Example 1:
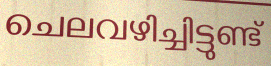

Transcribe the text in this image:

ചെലവഴിച്ചിട്ടുണ്ട്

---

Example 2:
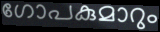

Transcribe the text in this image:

ഗോപകുമാറും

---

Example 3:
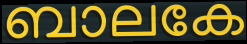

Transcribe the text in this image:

ബാലകേ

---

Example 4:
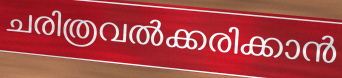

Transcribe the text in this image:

ചരിത്രവൽക്കരിക്കാൻ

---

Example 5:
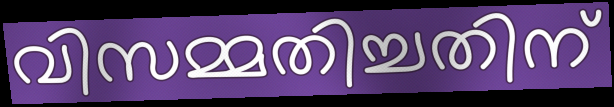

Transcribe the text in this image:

വിസമ്മതിച്ചതിന്